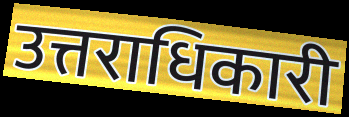
उत्तराधिकारी